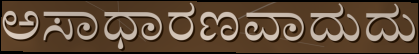
ಅಸಾಧಾರಣವಾದುದು